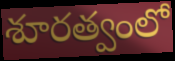
శూరత్వంలో